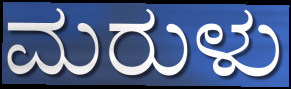
ಮರುಳು